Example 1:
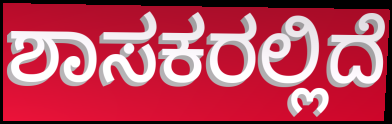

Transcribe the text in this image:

ಶಾಸಕರಲ್ಲಿದೆ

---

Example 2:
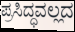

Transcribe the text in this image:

ಪ್ರಸಿದ್ಧವಲ್ಲದ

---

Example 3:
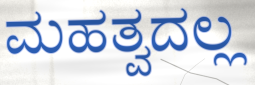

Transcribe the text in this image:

ಮಹತ್ವದಲ್ಲ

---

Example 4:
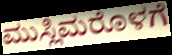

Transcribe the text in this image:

ಮುಸ್ಲಿಮರೊಳಗೆ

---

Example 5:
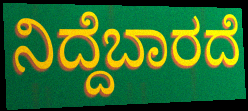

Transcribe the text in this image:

ನಿದ್ದೆಬಾರದೆ